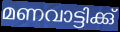
മണവാട്ടിക്കു്